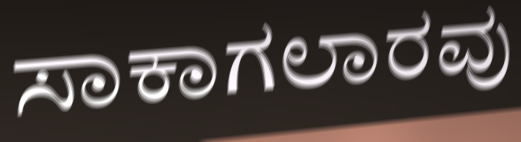
ಸಾಕಾಗಲಾರವು